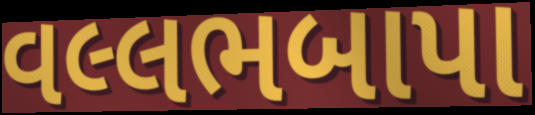
વલ્લભબાપા